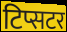
टिप्सटर